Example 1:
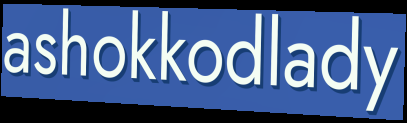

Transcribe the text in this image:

ashokkodlady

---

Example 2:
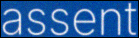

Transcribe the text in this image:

assent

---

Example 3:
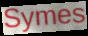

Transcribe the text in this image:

Symes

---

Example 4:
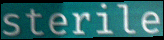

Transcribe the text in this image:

sterile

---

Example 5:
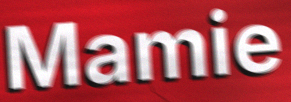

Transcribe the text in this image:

Mamie